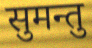
सुमन्तु